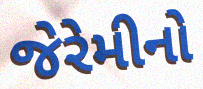
જેરેમીનો